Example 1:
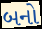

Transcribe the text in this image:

બનો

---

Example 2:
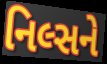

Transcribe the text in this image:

નિલ્સને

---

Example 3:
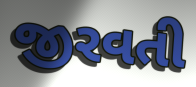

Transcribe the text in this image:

જીરવતી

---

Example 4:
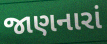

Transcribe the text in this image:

જાણનારાં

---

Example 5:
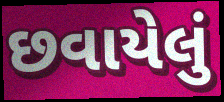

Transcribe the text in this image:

છવાયેલું